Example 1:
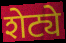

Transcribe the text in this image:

शेट्ये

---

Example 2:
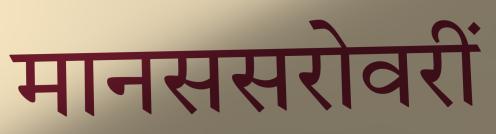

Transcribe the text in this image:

मानससरोवरीं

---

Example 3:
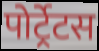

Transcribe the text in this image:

पोर्ट्रेटस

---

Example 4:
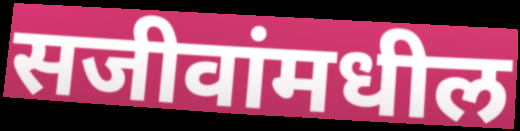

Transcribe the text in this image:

सजीवांमधील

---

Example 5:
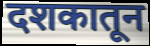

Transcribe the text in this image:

दशकातून